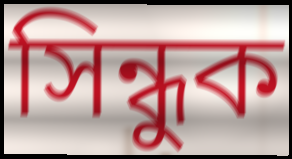
সিন্ধুক